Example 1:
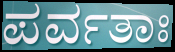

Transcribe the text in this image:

ಪರ್ವತಾಃ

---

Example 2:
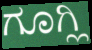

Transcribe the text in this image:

ಗೂಗ್ಲಿ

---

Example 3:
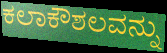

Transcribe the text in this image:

ಕಲಾಕೌಶಲವನ್ನು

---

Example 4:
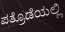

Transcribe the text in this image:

ಪತ್ರೊಡೆಯಲ್ಲಿ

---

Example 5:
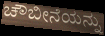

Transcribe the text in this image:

ಚೌಬೀನೆಯನ್ನು